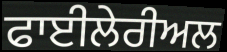
ਫਾਈਲੇਰੀਅਲ